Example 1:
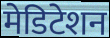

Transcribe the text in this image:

मेडिटेशन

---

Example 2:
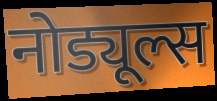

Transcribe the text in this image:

नोड्यूल्स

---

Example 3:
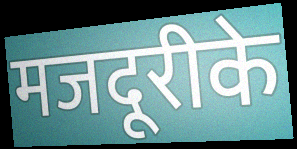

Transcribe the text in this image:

मजदूरीके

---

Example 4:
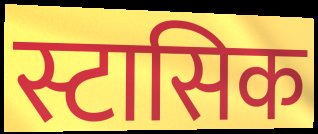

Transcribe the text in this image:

स्टासिक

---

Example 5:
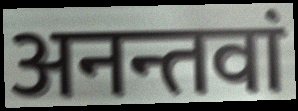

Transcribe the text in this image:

अनन्तवां